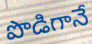
పొడిగానే